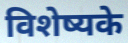
विशेष्यके